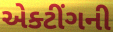
એક્ટીંગની